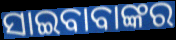
ସାଇବାବାଙ୍କର